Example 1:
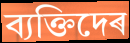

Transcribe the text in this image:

ব্যক্তিদেৰ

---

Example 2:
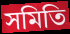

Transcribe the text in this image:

সমিতি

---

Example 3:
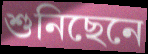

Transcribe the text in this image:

শুনিছেনে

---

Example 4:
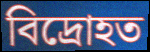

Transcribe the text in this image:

বিদ্ৰোহত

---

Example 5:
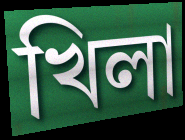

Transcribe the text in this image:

খিলা